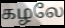
கழலே